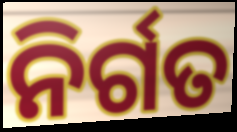
ନିର୍ଗତ